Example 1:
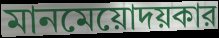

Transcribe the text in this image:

মানমেয়োদয়কার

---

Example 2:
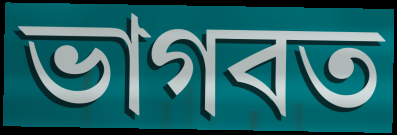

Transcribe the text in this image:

ভাগবত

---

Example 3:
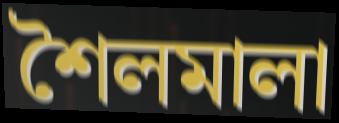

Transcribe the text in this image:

শৈলমালা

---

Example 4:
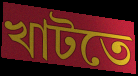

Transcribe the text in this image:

খাটতে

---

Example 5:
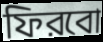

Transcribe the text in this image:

ফিরবো